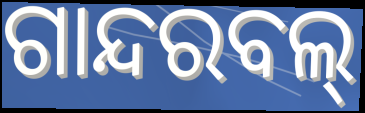
ଗାନ୍ଦରବଲ୍